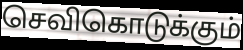
செவிகொடுக்கும்